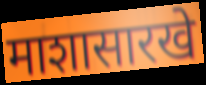
माशासारखे